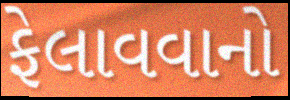
ફેલાવવાનો